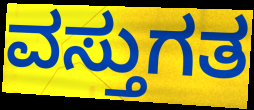
ವಸ್ತುಗತ